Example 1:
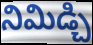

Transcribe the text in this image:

నిమిడ్చి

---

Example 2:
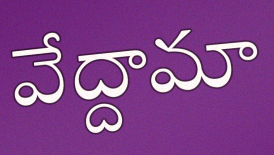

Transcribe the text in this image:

వేద్దామా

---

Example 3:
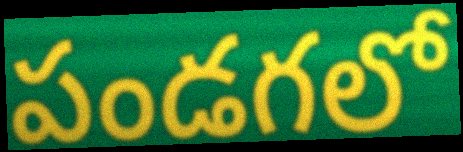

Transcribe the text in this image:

పండగలో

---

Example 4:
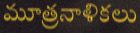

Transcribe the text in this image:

మూత్రనాళికలు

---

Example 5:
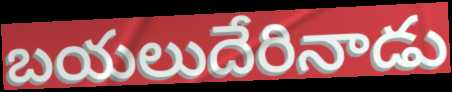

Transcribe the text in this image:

బయలుదేరినాడు